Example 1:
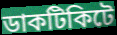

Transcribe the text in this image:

ডাকটিকিটে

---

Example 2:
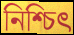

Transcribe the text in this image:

নিশ্চিৎ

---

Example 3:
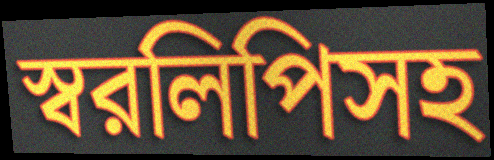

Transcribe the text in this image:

স্বরলিপিসহ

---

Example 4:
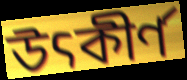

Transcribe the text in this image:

উৎকীর্ণ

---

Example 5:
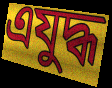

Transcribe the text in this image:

এযুদ্ধ